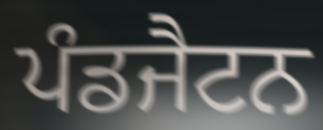
ਪੰਡਜੈਟਨ